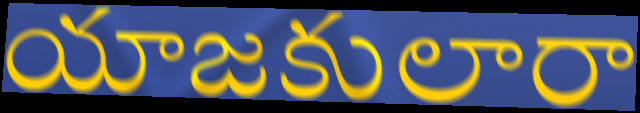
యాజకులారా